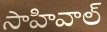
సాహివాల్